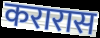
करारास